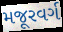
મજૂરવર્ગ